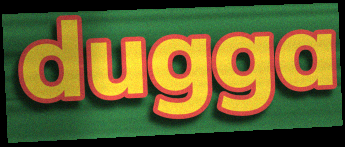
dugga